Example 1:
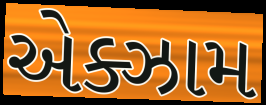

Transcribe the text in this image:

એક્ઝામ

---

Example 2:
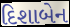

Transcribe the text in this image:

દિશાબેન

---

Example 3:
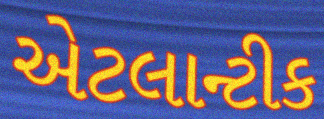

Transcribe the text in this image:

એટલાન્ટીક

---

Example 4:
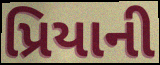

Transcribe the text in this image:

પ્રિયાની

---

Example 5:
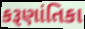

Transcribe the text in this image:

કરૂણાંતિકા